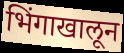
भिंगाखालून